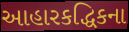
આહારકદ્ધિકના